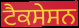
ਟੈਕਸੇਸਨ